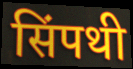
सिंपथी